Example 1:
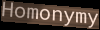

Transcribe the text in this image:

Homonymy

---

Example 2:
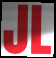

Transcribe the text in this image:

JL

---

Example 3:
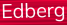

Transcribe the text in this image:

Edberg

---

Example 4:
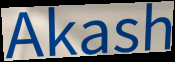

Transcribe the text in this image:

Akash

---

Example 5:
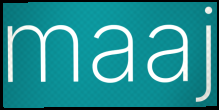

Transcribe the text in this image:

maaj